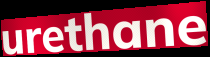
urethane